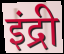
इंद्री